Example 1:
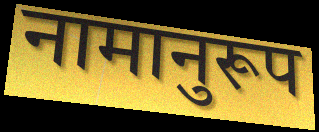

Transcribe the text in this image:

नामानुरूप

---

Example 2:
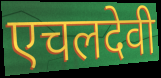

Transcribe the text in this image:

एचलदेवी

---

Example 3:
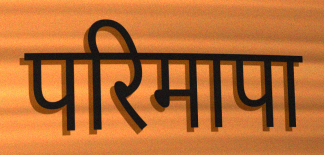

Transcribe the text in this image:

परिमापा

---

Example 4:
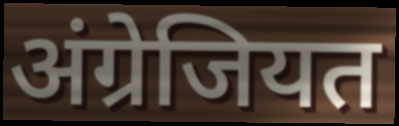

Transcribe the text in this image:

अंग्रेजियत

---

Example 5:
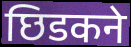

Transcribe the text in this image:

छिडकने